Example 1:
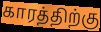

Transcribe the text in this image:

காரத்திற்கு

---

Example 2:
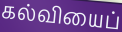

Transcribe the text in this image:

கல்வியைப்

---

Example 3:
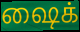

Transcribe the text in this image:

ஷைக்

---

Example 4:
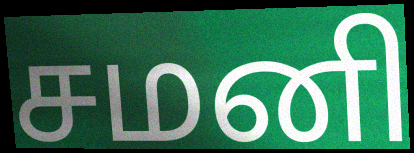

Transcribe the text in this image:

சமனி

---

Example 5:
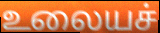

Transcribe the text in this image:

உலையச்